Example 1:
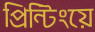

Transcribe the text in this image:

প্রিন্টিংয়ে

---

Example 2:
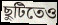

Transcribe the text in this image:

ছুটিতেও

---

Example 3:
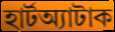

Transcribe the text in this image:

হার্টঅ্যাটাক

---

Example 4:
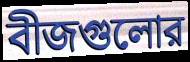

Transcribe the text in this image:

বীজগুলোর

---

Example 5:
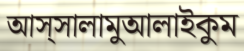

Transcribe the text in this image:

আস্সালামুআলাইকুম